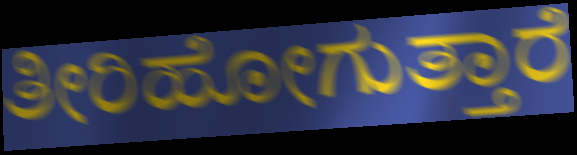
ತೀರಿಹೋಗುತ್ತಾರೆ